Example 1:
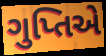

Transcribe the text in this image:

ગુપ્તિએ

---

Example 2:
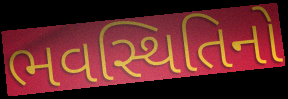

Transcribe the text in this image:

ભવસ્થિતિનો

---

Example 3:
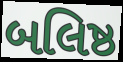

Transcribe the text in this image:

બલિષ્ઠ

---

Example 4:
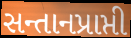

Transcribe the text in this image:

સન્તાનપ્રાપ્તી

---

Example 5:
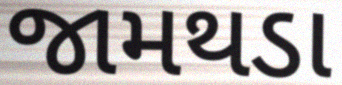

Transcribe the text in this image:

જામથડા